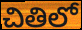
చితిలో